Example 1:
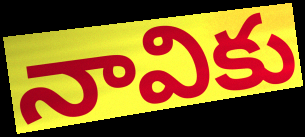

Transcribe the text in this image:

నావికు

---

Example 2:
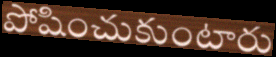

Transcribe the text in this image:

పోషించుకుంటారు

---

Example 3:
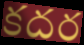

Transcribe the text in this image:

కదర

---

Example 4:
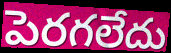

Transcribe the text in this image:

పెరగలేదు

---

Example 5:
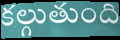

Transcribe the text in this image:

కల్గుతుంది